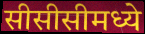
सीसीसीमध्ये